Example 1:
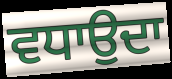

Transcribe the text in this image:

ਵਧਾਉਦਾ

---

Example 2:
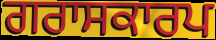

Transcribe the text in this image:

ਗਰਾਸਕਾਰਪ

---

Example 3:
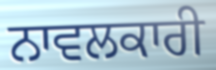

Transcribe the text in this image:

ਨਾਵਲਕਾਰੀ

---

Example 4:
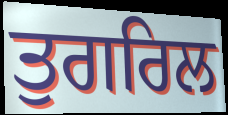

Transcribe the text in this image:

ਤੁਗਰਿਲ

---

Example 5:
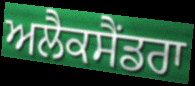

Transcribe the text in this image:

ਅਲੈਕਸੈਂਡਰਾ